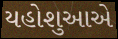
યહોશુઆએ